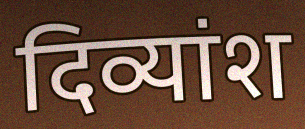
दिव्यांश